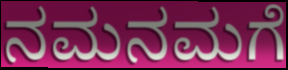
ನಮನಮಗೆ